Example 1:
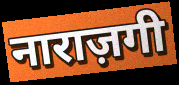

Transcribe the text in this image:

नाराज़गी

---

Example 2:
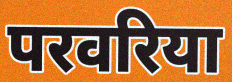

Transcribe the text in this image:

परवरिया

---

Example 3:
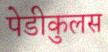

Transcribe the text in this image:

पेडीकुलस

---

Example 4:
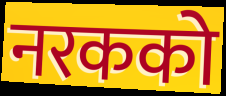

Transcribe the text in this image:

नरकको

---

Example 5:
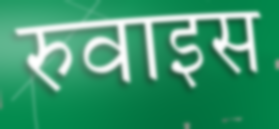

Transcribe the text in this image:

रुवाइस